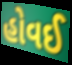
હોવઈ